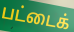
பட்டைக்